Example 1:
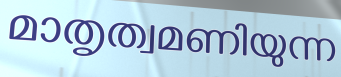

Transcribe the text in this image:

മാതൃത്വമണിയുന്ന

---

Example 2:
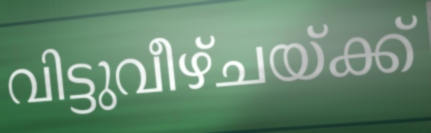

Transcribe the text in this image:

വിട്ടുവീഴ്ചയ്ക്ക്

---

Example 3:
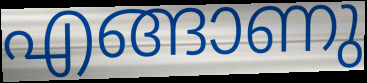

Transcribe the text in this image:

എങ്ങാണു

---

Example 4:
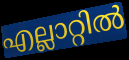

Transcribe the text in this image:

എല്ലാറ്റിൽ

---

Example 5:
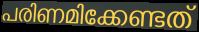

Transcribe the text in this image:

പരിണമിക്കേണ്ടത്